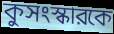
কুসংস্কারকে